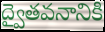
ద్వైతవనానికి